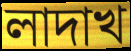
লাদাখ